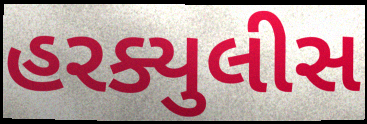
હરક્યુલીસ